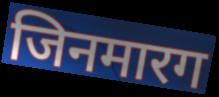
जिनमारग